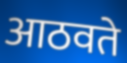
आठवते